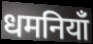
धमनियाँ